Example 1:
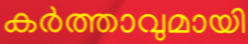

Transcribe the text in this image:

കർത്താവുമായി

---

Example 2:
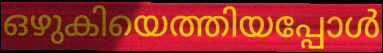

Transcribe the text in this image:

ഒഴുകിയെത്തിയപ്പോൾ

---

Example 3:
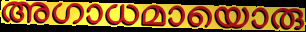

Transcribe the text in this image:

അഗാധമായൊരു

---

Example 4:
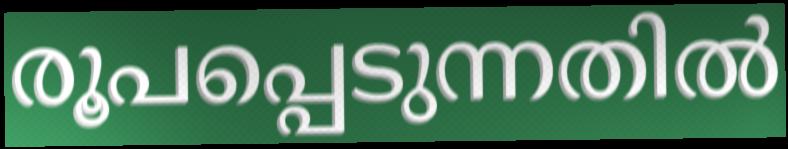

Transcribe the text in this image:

രൂപപ്പെടുന്നതിൽ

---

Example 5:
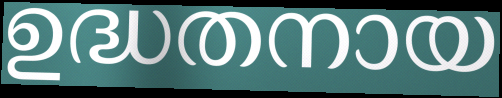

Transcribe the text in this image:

ഉദ്ധതനായ